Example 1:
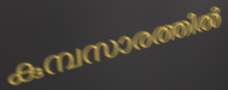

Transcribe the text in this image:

കുമ്പസാരത്തിൽ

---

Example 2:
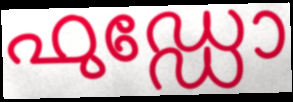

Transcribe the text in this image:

ഫുഡ്ഡോ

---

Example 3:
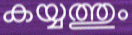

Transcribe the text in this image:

കയ്യത്തും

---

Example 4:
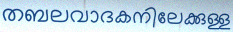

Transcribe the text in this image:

തബലവാദകനിലേക്കുള്ള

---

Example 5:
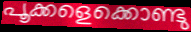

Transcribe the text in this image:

പൂക്കളെക്കൊണ്ടു